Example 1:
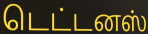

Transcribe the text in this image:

டெட்டனஸ்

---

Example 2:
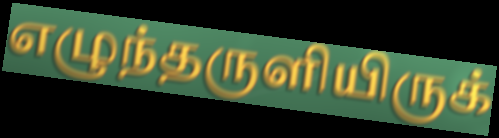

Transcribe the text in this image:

எழுந்தருளியிருக்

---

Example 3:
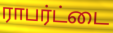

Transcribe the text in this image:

ராபர்ட்டை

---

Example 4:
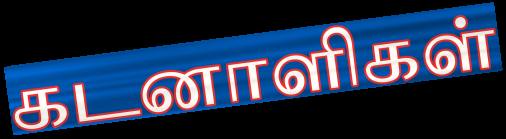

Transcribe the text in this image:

கடனாளிகள்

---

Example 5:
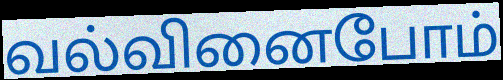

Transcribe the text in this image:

வல்வினைபோம்